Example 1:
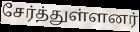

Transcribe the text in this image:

சேர்த்துள்ளனர்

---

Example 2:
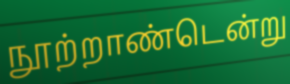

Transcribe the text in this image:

நூற்றாண்டென்று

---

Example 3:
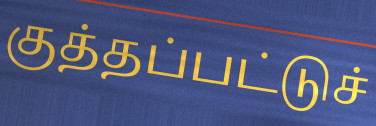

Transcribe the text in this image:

குத்தப்பட்டுச்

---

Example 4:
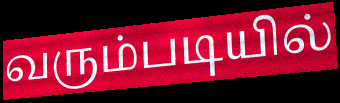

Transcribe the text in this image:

வரும்படியில்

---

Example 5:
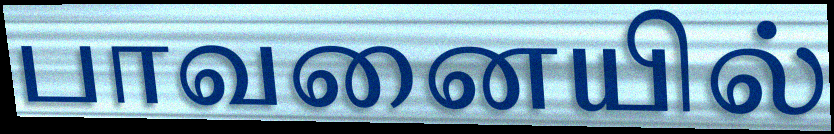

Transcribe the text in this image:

பாவனையில்